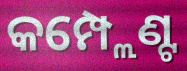
କମ୍ପ୍ଲେଣ୍ଟ